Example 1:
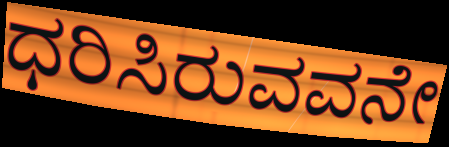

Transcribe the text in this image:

ಧರಿಸಿರುವವನೇ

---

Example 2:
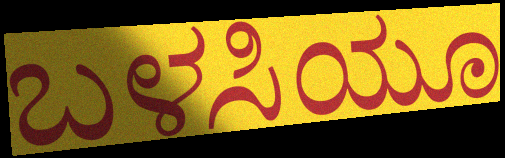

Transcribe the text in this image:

ಬಳಸಿಯೂ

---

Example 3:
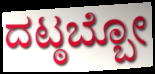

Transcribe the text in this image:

ದಟ್ಠಬ್ಬೋ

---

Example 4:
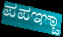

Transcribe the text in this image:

ಪಪಞ್ಚಾ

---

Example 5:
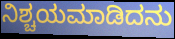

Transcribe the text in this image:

ನಿಶ್ಚಯಮಾಡಿದನು